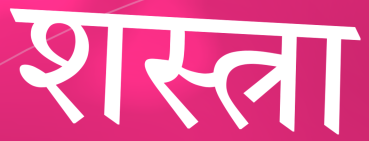
शस्त्रा